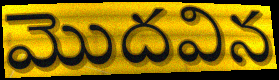
మొదవిన